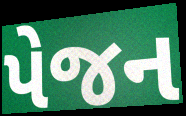
પેજન